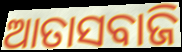
ଆତାସବାଜି